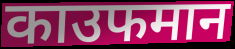
काउफमान